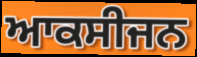
ਆਕਸੀਜਨ